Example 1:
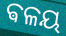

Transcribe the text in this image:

ଵଳୟ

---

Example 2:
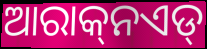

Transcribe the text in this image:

ଆରାକ୍‌ନଏଡ୍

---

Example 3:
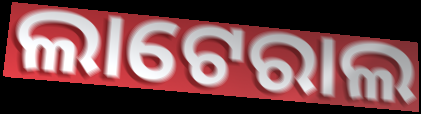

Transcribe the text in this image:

ଲାଟେରାଲ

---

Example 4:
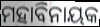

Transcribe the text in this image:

ମହାବିନାୟକ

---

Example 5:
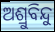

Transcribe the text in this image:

ଅଶ୍ରୁବିନ୍ଦୁ